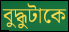
বুদ্ধুটাকে